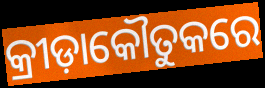
କ୍ରୀଡ଼ାକୌତୁକରେ